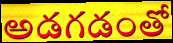
అడగడంతో